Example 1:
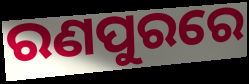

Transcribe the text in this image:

ରଣପୁରରେ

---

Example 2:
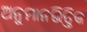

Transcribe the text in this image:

ଅନୁମାନଭିତ୍ତିକ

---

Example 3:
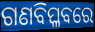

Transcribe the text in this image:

ଗଣବିପ୍ଳବରେ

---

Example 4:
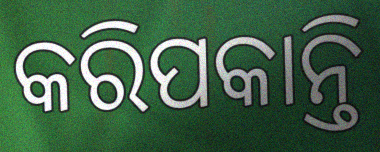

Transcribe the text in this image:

କରିପକାନ୍ତି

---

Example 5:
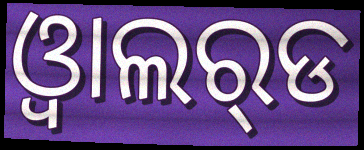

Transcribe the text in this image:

ଓ୍ବାଲର୍‌ଡ